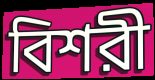
বিশরী